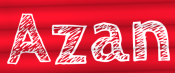
Azan